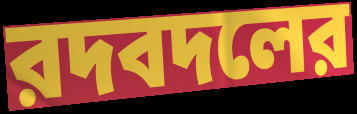
রদবদলের